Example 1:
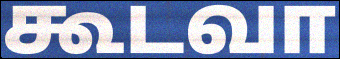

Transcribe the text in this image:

கூடவா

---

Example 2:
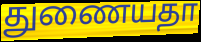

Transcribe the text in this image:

துணையதா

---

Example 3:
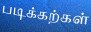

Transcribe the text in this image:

படிக்கற்கள்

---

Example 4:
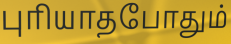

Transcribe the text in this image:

புரியாதபோதும்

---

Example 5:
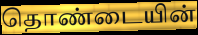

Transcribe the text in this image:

தொண்டையின்